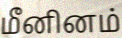
மீனினம்